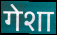
गेशा